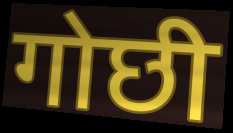
गोछी